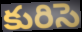
కురిసె